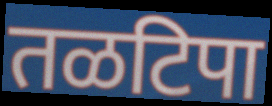
तळटिपा